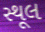
સ્થૂલ